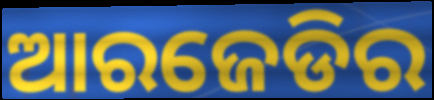
ଆରଜେଡିର